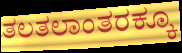
ತಲತಲಾಂತರಕ್ಕೂ